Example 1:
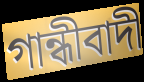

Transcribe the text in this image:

গান্ধীবাদী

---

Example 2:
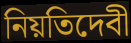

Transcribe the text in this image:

নিয়তিদেবী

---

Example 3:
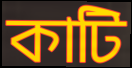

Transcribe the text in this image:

কাটি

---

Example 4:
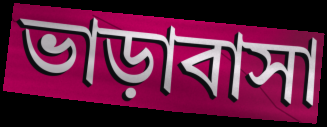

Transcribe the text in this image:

ভাড়াবাসা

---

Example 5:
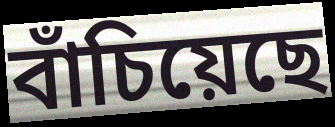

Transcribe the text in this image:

বাঁচিয়েছে